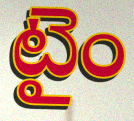
టైం